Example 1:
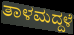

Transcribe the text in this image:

ತಾಳಮದ್ದಳೆ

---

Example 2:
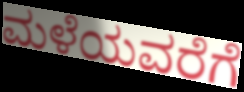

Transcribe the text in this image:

ಮಳೆಯವರೆಗೆ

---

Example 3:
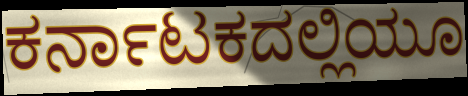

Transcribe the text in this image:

ಕರ್ನಾಟಕದಲ್ಲಿಯೂ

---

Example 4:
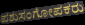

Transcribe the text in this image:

ಪಶುಸಂಗೋಪಕರು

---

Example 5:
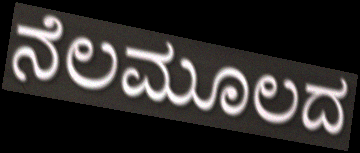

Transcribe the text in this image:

ನೆಲಮೂಲದ